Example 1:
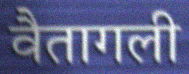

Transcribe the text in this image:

वैतागली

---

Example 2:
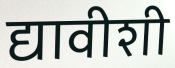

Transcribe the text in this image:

द्यावीशी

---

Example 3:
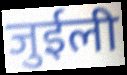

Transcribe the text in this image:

जुईली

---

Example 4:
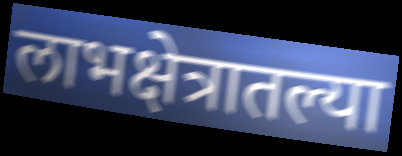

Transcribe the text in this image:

लाभक्षेत्रातल्या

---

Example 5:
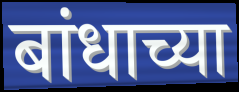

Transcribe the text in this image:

बांधाच्या